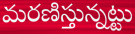
మరణిస్తున్నట్టు